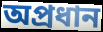
অপ্রধান